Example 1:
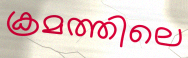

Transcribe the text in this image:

ക്രമത്തിലെ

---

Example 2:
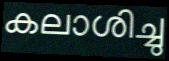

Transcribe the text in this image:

കലാശിച്ചു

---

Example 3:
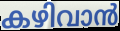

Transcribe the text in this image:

കഴിവാൻ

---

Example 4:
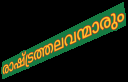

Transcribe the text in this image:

രാഷ്ട്രത്തലവന്മാരും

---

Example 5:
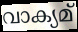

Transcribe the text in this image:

വാക്യമ്